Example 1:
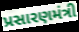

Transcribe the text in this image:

પ્રસારણમંત્રી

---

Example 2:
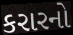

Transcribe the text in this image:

કરારનો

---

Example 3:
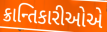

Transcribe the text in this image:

ક્રાન્તિકારીઓએ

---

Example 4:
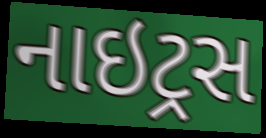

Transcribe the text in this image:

નાઇટ્રસ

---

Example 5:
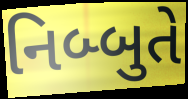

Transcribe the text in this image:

નિબ્બુતે